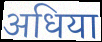
अधिया